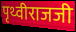
पृथ्वीराजजी